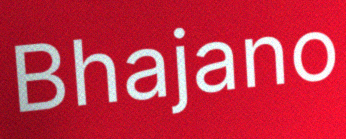
Bhajano